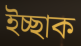
ইচ্ছাক